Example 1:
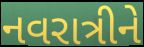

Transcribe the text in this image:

નવરાત્રીને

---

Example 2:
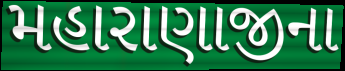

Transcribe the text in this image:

મહારાણાજીના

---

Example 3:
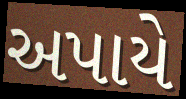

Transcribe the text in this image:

અપાયે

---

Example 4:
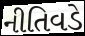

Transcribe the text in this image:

નીતિવડે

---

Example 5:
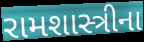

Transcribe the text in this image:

રામશાસ્ત્રીના